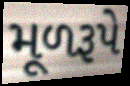
મૂળરૂપે